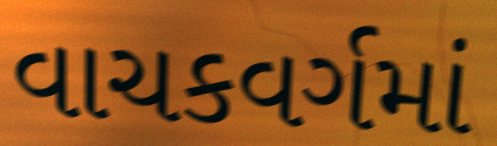
વાચકવર્ગમાં